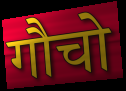
गौचो